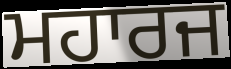
ਮਹਾਰਜ